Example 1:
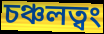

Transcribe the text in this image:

চঞ্চলত্বং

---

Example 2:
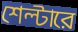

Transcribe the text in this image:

শেল্টারে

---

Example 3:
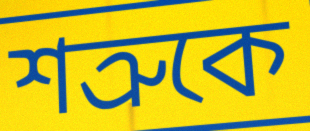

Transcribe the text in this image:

শত্রুকে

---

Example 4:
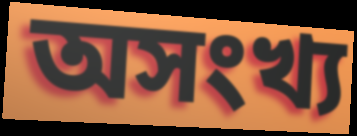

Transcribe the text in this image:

অসংখ্য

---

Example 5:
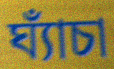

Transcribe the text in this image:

ঘ্যাঁচা